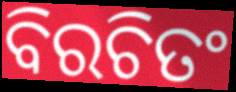
ବିରଚିତଂ